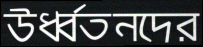
উর্ধ্বতনদের